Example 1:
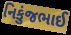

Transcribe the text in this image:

નિકુંજભાઈ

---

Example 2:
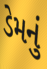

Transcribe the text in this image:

ડેમનું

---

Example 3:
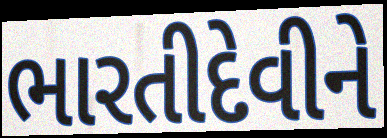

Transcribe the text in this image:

ભારતીદેવીને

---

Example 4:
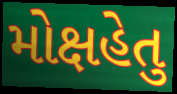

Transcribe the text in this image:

મોક્ષહેતુ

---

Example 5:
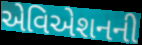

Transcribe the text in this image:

એવિએશનની